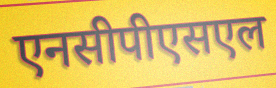
एनसीपीएसएल